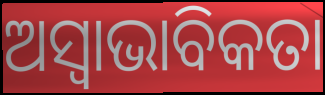
ଅସ୍ୱାଭାବିକତା